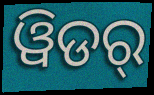
ୱିଡର୍